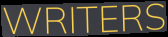
WRITERS